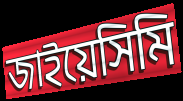
জাইয়েসিমি